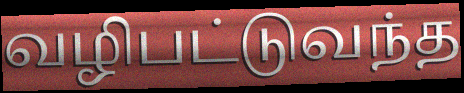
வழிபட்டுவந்த